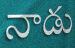
నాడు